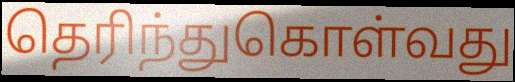
தெரிந்துகொள்வது